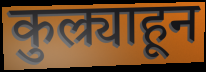
कुल्र्याहून